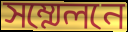
সম্মেলনে